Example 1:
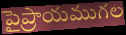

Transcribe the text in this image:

పైప్రాయముగల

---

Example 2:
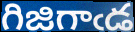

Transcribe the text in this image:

గిజిగాఁడ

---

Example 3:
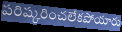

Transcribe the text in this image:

పరిష్కరించలేకపోయారు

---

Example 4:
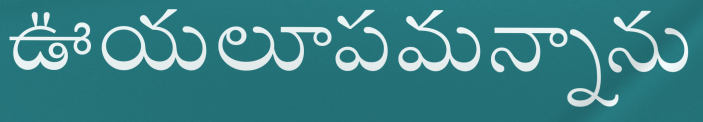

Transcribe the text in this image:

ఊయలూపమన్నాను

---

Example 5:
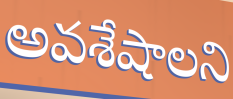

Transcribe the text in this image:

అవశేషాలని